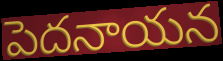
పెదనాయన